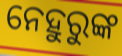
ନେହୁରୁଙ୍କ